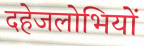
दहेजलोभियों